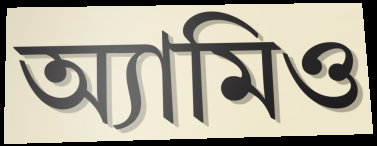
অ্যামিও